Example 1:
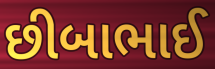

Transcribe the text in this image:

છીબાભાઈ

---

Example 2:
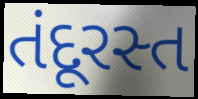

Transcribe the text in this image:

તંદૂરસ્ત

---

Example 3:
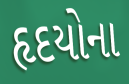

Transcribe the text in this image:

હૃદયોના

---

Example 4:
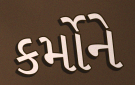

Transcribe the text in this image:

કર્મોને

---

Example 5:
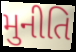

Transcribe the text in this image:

મુનીતિ